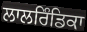
ਲਾਲਰਿੰਡਿਕਾ